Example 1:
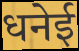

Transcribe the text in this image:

धनेई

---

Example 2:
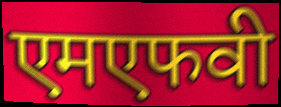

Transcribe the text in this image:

एमएफवी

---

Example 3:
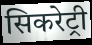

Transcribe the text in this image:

सिकरेट्री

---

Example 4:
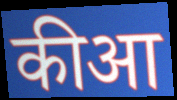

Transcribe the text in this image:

कीआ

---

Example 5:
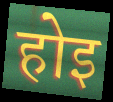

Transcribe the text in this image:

होइ